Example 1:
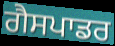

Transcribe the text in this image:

ਗੈਸਪਾਡਰ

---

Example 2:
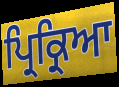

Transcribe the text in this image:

ਪ੍ਰਿਕ੍ਰਿਆ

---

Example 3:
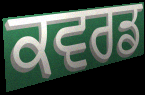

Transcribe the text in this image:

ਕਵਰਡ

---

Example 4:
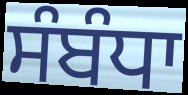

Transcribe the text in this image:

ਸੰਬੰਧਾ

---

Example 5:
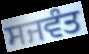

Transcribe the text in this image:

ਸਜਵੰਤ